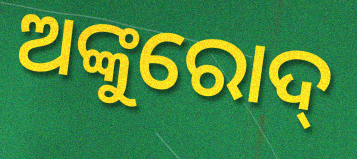
ଅଙ୍କୁରୋଦ୍